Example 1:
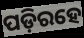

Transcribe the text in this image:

ପଡ଼ିରହେ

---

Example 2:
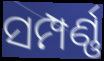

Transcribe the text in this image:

ସମ୍ପର୍ଣ୍ଣ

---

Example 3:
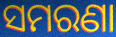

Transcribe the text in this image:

ସମରଣା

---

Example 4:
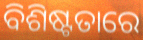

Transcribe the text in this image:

ବିଶିଷ୍ଟତାରେ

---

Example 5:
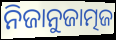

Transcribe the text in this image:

ନିଜାନୁଜାତ୍ମଜ